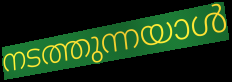
നടത്തുന്നയാൾ